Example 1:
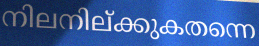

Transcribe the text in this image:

നിലനില്ക്കുകതന്നെ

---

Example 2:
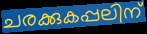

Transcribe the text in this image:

ചരക്കുകപ്പലിന്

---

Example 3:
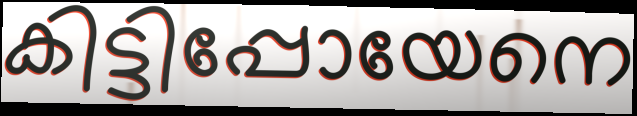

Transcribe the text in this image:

കിട്ടിപ്പോയേനെ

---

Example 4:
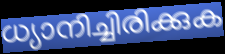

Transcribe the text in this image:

ധ്യാനിച്ചിരിക്കുക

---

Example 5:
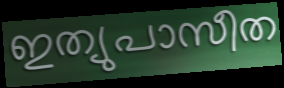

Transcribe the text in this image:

ഇത്യുപാസീത